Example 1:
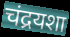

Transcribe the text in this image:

चंद्रयशा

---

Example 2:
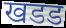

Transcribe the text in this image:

खडड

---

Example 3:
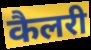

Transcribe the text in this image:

कैलरी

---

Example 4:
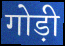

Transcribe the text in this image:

गोड़ी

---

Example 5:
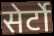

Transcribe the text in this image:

सेर्टो